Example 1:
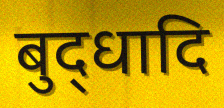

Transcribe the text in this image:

बुद्धादि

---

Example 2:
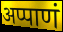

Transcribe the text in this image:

अप्पाणं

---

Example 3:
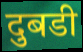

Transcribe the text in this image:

दुबडी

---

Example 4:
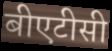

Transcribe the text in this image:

बीएटीसी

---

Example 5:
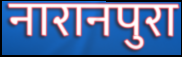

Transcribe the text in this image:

नारानपुरा